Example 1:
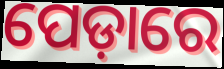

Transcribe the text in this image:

ପେଡ଼ାରେ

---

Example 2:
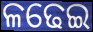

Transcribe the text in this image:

ଳଢେଇ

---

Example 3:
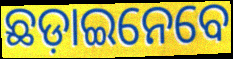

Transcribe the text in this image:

ଛଡ଼ାଇନେବେ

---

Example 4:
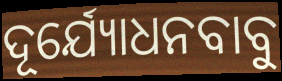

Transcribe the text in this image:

ଦୂର୍ଯ୍ୟୋଧନବାବୁ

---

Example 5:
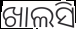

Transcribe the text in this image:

ଖାଲସି